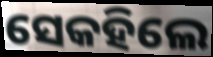
ସେକହିଲେ